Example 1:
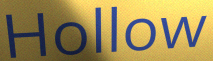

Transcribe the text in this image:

Hollow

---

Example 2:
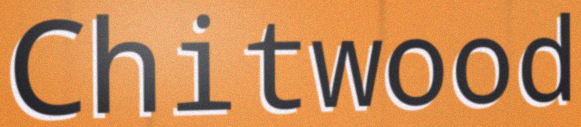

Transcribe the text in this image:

Chitwood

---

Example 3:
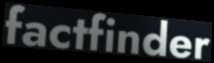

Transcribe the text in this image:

factfinder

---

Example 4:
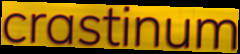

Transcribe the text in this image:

crastinum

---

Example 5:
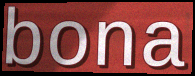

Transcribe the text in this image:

bona